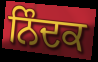
ਨਿੰਦਕ